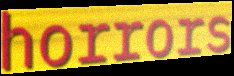
horrors